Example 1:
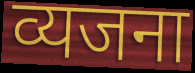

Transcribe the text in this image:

व्यजना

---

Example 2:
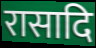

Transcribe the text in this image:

रासादि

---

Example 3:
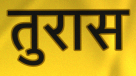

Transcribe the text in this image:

तुरास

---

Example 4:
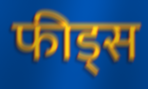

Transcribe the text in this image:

फीड्स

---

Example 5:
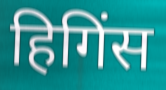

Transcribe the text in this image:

हिगिंस